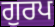
ਗੁਰਪ